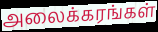
அலைக்கரங்கள்